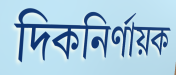
দিকনির্ণায়ক